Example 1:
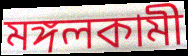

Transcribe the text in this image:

মঙ্গলকামী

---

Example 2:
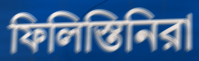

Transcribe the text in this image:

ফিলিস্তিনিরা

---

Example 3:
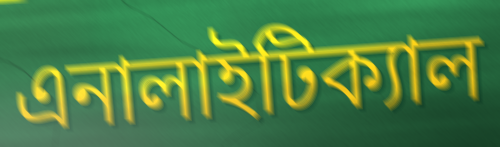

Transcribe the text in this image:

এনালাইটিক্যাল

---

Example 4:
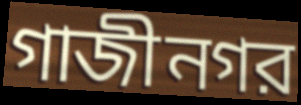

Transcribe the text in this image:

গাজীনগর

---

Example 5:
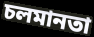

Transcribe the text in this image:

চলমানতা